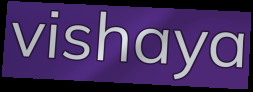
vishaya